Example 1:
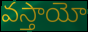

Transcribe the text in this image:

వస్తాయో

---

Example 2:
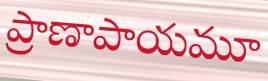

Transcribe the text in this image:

ప్రాణాపాయమూ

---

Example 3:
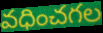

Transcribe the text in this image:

వధించగల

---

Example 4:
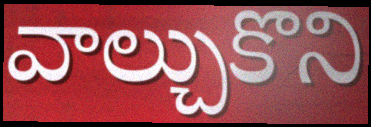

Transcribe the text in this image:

వాల్చుకొని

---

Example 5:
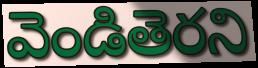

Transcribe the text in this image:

వెండితెరని